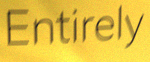
Entirely